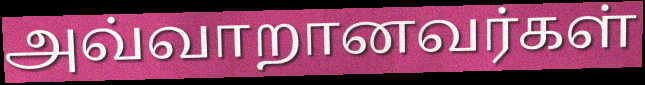
அவ்வாறானவர்கள்